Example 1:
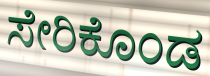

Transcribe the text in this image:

ಸೇರಿಕೊಂಡ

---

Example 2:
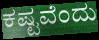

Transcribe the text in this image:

ಕಷ್ಟವೆಂದು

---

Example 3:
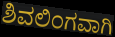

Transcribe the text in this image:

ಶಿವಲಿಂಗವಾಗಿ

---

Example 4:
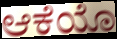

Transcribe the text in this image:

ಆಕೆಯೊ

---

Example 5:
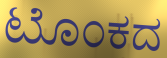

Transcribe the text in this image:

ಟೊಂಕದ